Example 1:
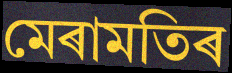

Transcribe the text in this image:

মেৰামতিৰ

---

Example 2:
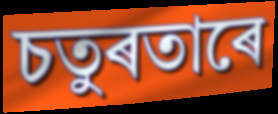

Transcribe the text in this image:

চতুৰতাৰে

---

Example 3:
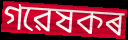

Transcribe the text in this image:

গৱেষকৰ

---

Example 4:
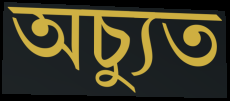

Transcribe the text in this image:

অচ্যুত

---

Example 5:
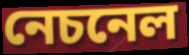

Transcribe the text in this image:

নেচনেল